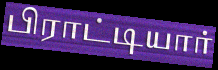
பிராட்டியார்